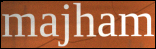
majham